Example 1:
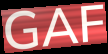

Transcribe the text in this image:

GAF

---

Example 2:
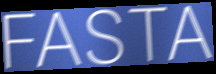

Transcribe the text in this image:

FASTA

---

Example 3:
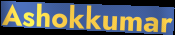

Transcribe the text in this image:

Ashokkumar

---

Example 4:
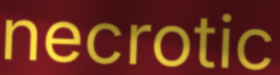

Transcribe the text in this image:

necrotic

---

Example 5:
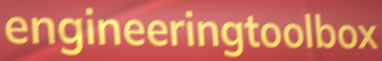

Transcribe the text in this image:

engineeringtoolbox